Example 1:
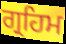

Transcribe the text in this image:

ਗ੍ਰਹਿਮ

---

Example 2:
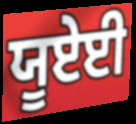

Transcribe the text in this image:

ਯੂਏਈ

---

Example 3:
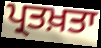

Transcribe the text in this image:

ਪ੍ਰਤਖ਼ਤਾ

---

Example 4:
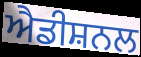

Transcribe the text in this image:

ਐਡੀਸ਼ਨਲ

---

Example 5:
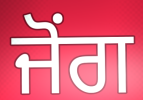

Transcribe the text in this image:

ਜੋਂਗ